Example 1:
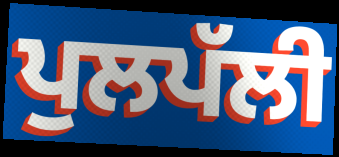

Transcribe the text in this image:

ਪੁਲਪੱਲੀ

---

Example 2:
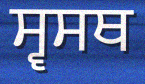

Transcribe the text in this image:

ਸ੍ਵਸਥ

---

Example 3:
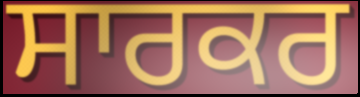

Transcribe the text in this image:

ਸਾਰਕਰ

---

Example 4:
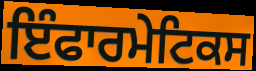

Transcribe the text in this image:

ਇੰਫਾਰਮੇਟਿਕਸ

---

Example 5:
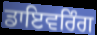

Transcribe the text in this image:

ਡਾਇਵਰਿੰਗ